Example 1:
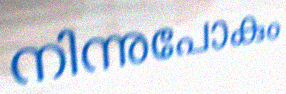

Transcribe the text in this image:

നിന്നുപോകും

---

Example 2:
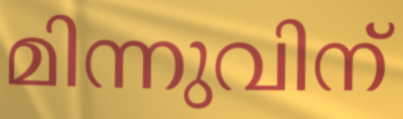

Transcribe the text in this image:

മിന്നുവിന്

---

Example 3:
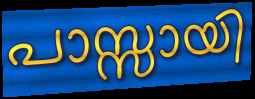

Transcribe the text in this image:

പാസ്സായി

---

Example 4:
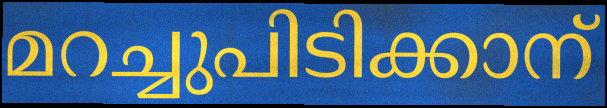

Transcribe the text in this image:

മറച്ചുപിടിക്കാന്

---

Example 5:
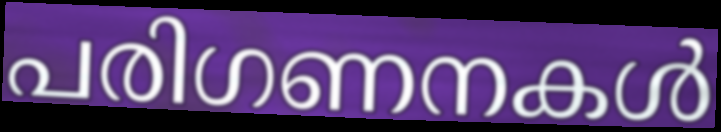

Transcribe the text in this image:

പരിഗണനകൾ